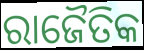
ରାଜୈତିକ